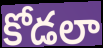
కోడలా